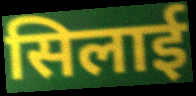
सिलाई